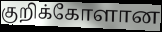
குறிக்கோளான